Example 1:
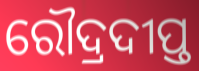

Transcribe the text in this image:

ରୌଦ୍ରଦୀପ୍ତ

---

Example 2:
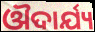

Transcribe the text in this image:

ଔଦାର୍ଯ୍ୟ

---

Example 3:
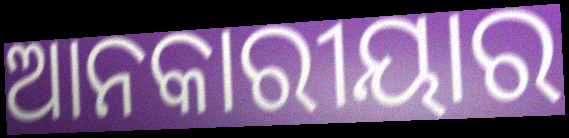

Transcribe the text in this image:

ଆନକାରୀୟାର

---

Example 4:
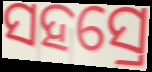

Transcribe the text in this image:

ସହସ୍ରେ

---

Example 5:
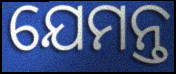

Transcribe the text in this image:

ଯେମନ୍ତ